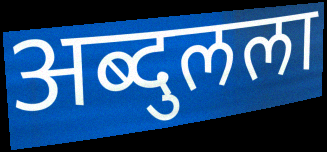
अब्दुलला